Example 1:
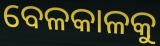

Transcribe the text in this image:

ବେଳକାଳକୁ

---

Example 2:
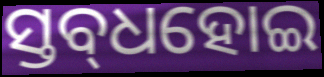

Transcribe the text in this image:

ସ୍ତବ୍‌ଧହୋଇ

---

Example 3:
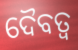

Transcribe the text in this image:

ଦୈବତ୍ଵ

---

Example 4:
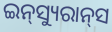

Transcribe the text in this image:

ଇନ୍‌ସ୍ୟୁରାନ୍‌ସ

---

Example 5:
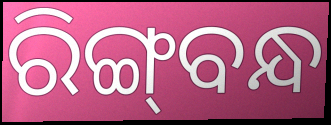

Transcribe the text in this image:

ରିଙ୍ଗ୍‌ବନ୍ଧ